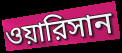
ওয়ারিসান